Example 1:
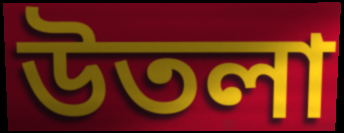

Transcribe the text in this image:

উতলা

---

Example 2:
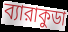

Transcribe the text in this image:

ব্যারাকুডা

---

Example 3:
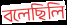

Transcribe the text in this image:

বলেছিলি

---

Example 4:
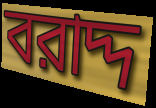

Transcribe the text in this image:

বরাদ্দ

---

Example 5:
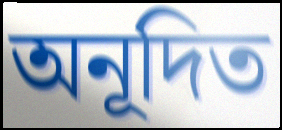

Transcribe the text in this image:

অনূদিত